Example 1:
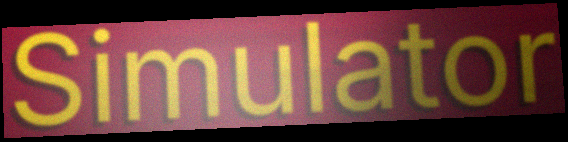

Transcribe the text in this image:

Simulator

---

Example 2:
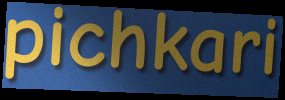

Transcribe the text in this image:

pichkari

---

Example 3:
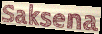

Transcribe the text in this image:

Saksena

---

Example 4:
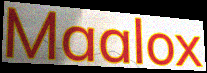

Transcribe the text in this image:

Maalox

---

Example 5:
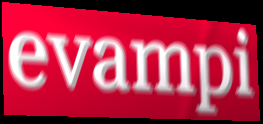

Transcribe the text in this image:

evampi